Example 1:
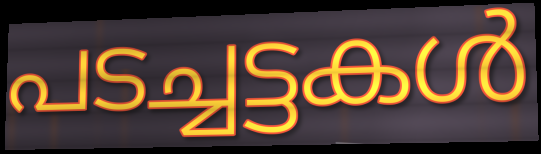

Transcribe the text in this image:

പടച്ചട്ടകൾ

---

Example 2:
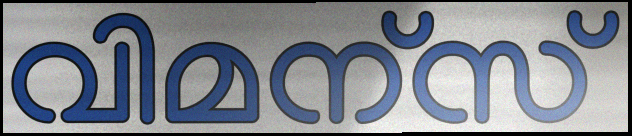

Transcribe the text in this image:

വിമന്സ്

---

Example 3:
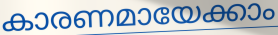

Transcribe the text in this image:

കാരണമായേക്കാം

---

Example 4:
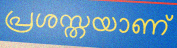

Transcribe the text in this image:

പ്രശസ്തയാണ്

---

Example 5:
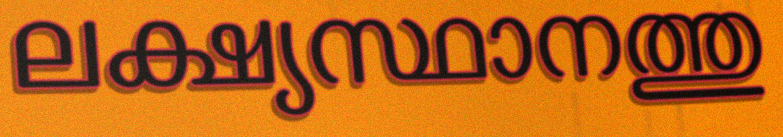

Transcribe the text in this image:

ലക്ഷ്യസ്ഥാനത്തു